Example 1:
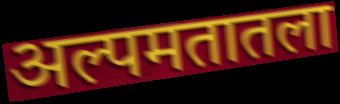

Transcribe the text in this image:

अल्पमतातला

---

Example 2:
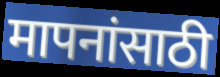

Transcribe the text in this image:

मापनांसाठी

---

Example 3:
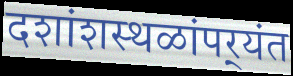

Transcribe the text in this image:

दशांशस्थळांपर्यंत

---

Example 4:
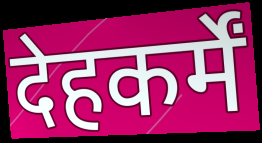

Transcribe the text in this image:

देहकर्में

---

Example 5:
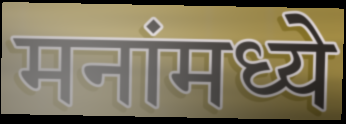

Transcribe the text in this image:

मनांमध्ये